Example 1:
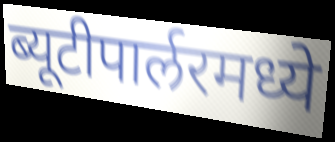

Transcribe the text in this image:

ब्यूटीपार्लरमध्ये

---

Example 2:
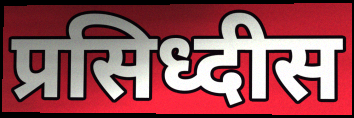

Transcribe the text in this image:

प्रसिध्दीस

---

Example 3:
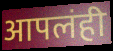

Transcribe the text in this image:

आपलंही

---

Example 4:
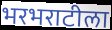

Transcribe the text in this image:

भरभराटीला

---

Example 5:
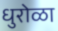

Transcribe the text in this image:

धुरोळा